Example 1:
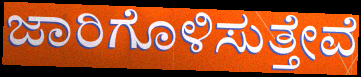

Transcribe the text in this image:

ಜಾರಿಗೊಳಿಸುತ್ತೇವೆ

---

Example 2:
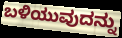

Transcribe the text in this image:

ಬಳಿಯುವುದನ್ನು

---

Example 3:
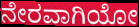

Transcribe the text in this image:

ನೇರವಾಗಿಯೋ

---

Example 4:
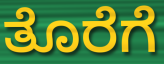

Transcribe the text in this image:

ತೊರೆಗೆ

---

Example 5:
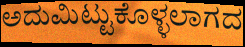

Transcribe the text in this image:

ಅದುಮಿಟ್ಟುಕೊಳ್ಳಲಾಗದ